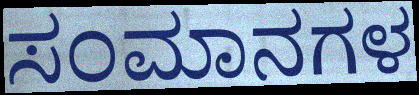
ಸಂಮಾನಗಳ